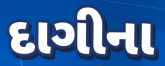
દાગીના